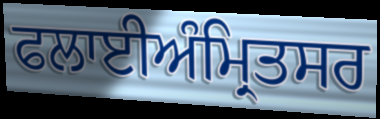
ਫਲਾਈਅੰਮ੍ਰਿਤਸਰ